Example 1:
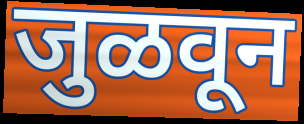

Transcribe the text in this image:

जुळवून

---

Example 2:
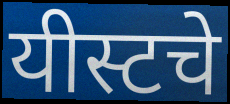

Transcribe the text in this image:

यीस्टचे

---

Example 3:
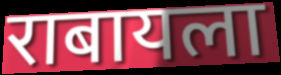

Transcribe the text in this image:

राबायला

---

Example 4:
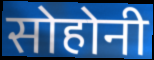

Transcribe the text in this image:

सोहोनी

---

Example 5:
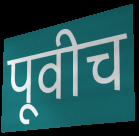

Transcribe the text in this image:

पूवीच